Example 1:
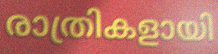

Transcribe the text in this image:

രാത്രികളായി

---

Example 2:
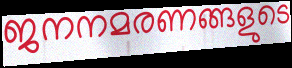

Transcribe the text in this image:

ജനനമരണങ്ങളുടെ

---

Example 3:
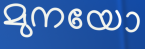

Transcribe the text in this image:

മുനയോ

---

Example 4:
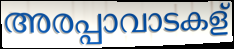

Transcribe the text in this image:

അരപ്പാവാടകള്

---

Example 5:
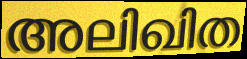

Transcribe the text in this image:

അലിഖിത